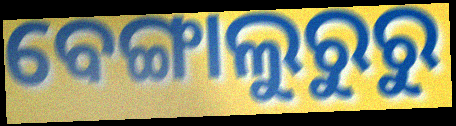
ବେଙ୍ଗାଲୁରୁରୁ